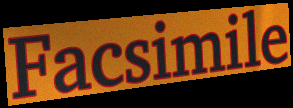
Facsimile